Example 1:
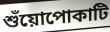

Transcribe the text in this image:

শুঁয়োপোকাটি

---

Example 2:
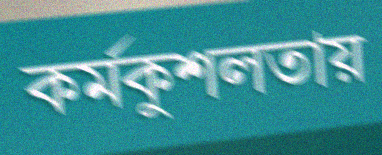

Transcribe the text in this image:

কর্মকুশলতায়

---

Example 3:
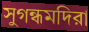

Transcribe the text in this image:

সুগন্ধমদিরা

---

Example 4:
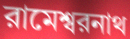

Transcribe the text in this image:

রামেশ্বরনাথ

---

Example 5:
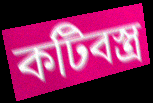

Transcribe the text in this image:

কটিবস্ত্র